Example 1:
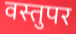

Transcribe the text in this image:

वस्तुपर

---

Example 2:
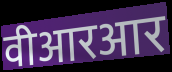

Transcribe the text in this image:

वीआरआर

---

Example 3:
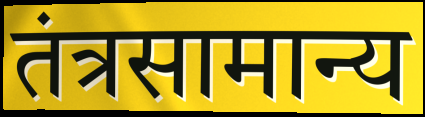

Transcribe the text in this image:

तंत्रसामान्य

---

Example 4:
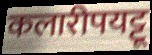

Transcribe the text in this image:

कलारीपयट्टू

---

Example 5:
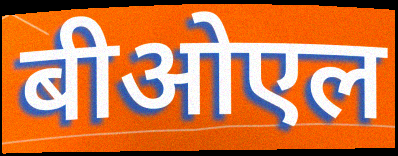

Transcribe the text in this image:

बीओएल